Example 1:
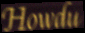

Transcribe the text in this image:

Howdu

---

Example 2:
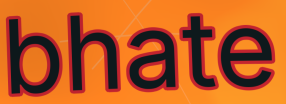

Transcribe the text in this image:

bhate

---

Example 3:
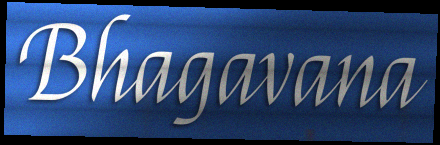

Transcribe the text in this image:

Bhagavana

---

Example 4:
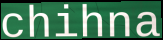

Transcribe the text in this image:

chihna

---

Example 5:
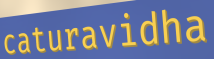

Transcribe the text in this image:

caturavidha